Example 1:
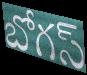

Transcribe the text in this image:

బోగస్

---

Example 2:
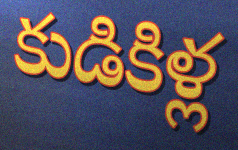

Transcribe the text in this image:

కుడికిళ్ల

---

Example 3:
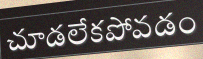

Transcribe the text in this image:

చూడలేకపోవడం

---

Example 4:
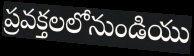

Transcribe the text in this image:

ప్రవక్తలలోనుండియు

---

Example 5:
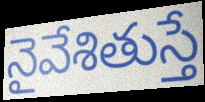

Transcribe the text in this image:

నైవేశితుస్తే